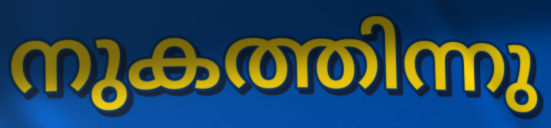
നുകത്തിന്നു